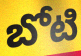
బోటి